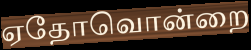
ஏதோவொன்றை